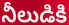
నీలుడికి